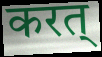
करत्